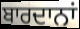
ਬਾਰਦਾਨਾਂ